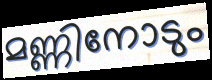
മണ്ണിനോടും